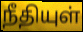
நீதியுள்